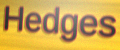
Hedges